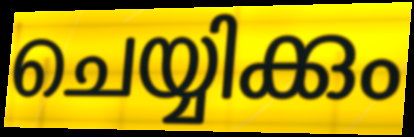
ചെയ്യിക്കും